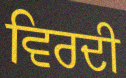
ਵਿਰਦੀ